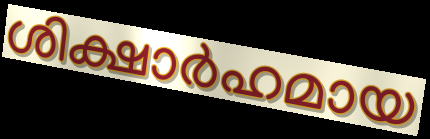
ശിക്ഷാർഹമായ